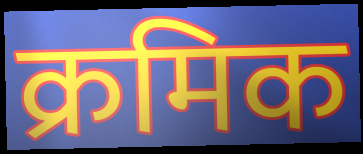
क्रमिक